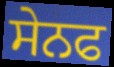
ਸੇਨਫ